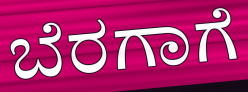
ಬೆರಗಾಗೆ